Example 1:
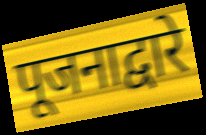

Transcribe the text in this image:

पूजनाद्वारे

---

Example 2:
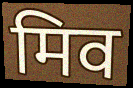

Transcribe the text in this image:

मिव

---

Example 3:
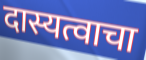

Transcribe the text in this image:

दास्यत्वाचा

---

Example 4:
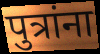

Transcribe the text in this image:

पुत्रांना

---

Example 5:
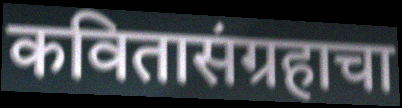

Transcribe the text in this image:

कवितासंग्रहाचा